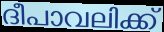
ദീപാവലിക്ക്